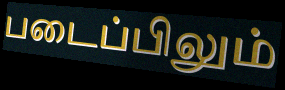
படைப்பிலும்